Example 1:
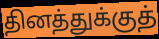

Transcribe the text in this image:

தினத்துக்குத்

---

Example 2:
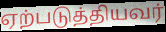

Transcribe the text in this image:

ஏற்படுத்தியவர்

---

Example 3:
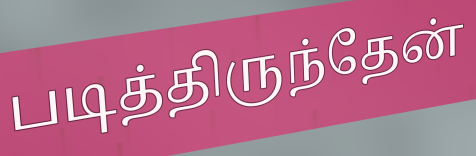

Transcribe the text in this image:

படித்திருந்தேன்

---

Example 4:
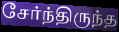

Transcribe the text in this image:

சேர்ந்திருந்த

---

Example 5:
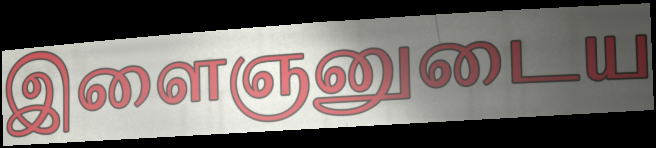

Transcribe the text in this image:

இளைஞனுடைய